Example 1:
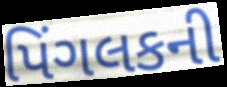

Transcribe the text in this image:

પિંગલકની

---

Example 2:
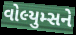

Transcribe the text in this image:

વોલ્યુમ્સને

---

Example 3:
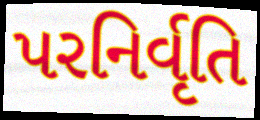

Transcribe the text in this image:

પરનિર્વૃતિ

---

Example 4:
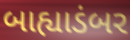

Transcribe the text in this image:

બાહ્યાડંબર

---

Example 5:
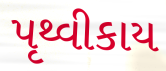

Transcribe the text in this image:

પૃથ્વીકાય